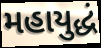
મહાયુદ્ધં